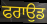
ਫਰਾਉਡ